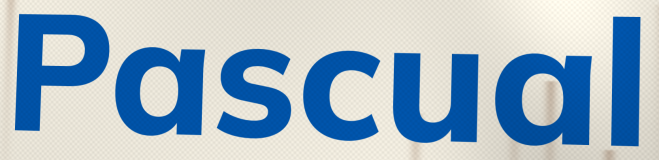
Pascual